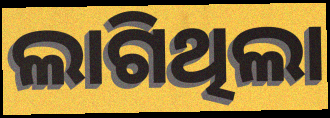
ଲାଗିଥିଲା